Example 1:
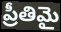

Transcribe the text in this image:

ప్రీతిమై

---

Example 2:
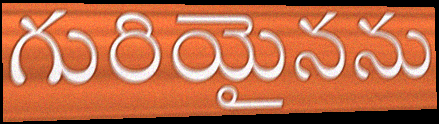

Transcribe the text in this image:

గురియైనను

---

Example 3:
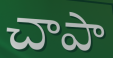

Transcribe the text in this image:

చాపా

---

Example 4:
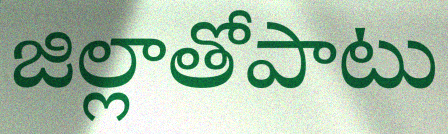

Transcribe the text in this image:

జిల్లాతోపాటు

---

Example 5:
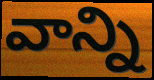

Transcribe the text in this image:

వాన్ని